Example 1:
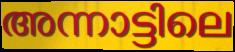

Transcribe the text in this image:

അന്നാട്ടിലെ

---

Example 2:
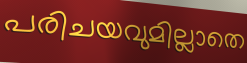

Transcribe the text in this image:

പരിചയവുമില്ലാതെ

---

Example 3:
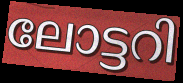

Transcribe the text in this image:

ലോട്ടറി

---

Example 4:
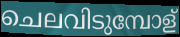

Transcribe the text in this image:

ചെലവിടുമ്പോള്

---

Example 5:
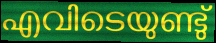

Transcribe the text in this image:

എവിടെയുണ്ടു്